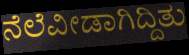
ನೆಲೆವೀಡಾಗಿದ್ದಿತು